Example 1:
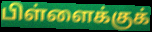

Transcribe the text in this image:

பிள்ளைக்குக்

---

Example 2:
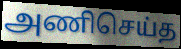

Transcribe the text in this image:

அணிசெய்த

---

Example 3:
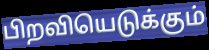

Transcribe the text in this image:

பிறவியெடுக்கும்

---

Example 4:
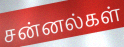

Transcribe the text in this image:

சன்னல்கள்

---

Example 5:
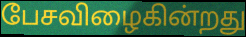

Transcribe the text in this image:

பேசவிழைகின்றது